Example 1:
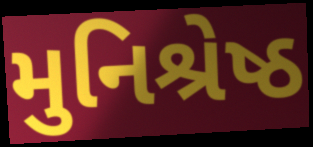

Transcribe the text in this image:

મુનિશ્રેષ્ઠ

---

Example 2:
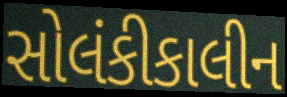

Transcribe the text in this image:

સોલંકીકાલીન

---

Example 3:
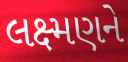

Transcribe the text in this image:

લક્ષ્મણને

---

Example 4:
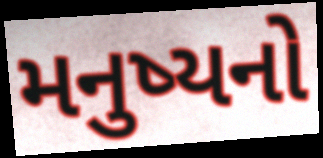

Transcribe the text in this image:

મનુષ્યનો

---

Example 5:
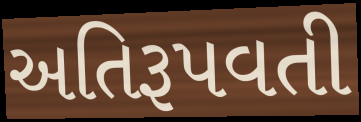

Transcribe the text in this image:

અતિરૂપવતી